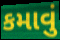
કમાવું